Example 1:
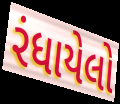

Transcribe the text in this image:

રંધાયેલો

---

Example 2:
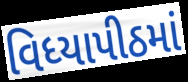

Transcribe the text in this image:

વિધ્યાપીઠમાં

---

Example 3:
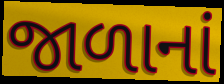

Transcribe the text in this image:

જાળાનાં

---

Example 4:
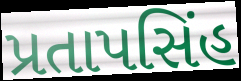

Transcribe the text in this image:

પ્રતાપસિંહ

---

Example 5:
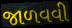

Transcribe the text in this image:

જાળવવી